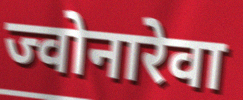
ज्वोनारेवा